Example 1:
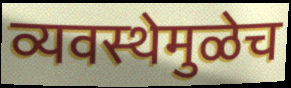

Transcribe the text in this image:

व्यवस्थेमुळेच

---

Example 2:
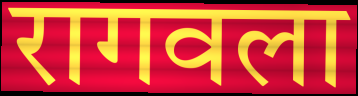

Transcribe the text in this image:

रागवला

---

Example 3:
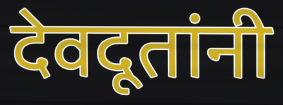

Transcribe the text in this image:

देवदूतांनी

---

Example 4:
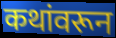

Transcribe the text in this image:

कथांवरून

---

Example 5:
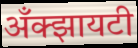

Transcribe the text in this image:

अँक्झायटी